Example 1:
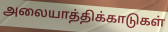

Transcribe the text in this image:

அலையாத்திக்காடுகள்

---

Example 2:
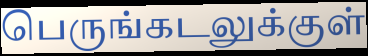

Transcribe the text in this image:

பெருங்கடலுக்குள்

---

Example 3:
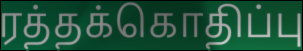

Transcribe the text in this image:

ரத்தக்கொதிப்பு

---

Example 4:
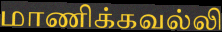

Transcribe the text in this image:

மாணிக்கவல்லி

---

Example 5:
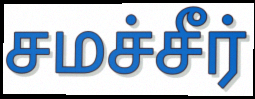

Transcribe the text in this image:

சமச்சீர்